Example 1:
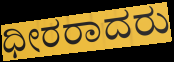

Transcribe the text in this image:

ಧೀರರಾದರು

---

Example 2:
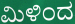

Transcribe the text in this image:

ಮಿಳಿಂದ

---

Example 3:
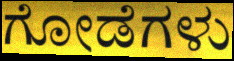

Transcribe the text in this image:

ಗೋಡೆಗಳು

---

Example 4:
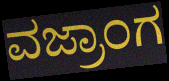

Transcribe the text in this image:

ವಜ್ರಾಂಗ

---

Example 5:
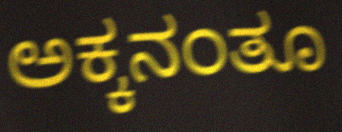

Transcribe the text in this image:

ಅಕ್ಕನಂತೂ